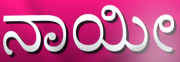
ನಾಯೀ